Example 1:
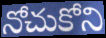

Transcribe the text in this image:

నోచుకోని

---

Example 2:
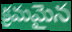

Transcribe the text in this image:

క్రమమైన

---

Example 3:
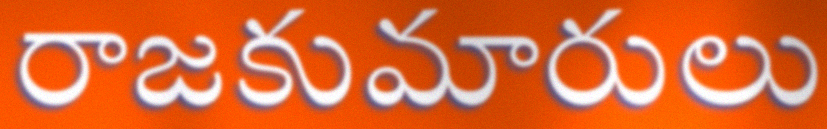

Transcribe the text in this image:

రాజకుమారులు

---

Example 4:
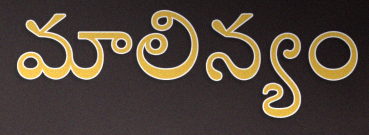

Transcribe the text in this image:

మాలిన్యం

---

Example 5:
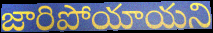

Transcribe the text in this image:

జారిపోయాయని